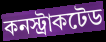
কনস্ট্রাকটেড